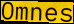
Omnes